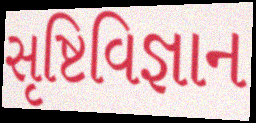
સૃષ્ટિવિજ્ઞાન